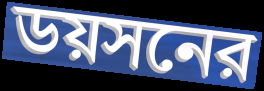
ডয়সনের